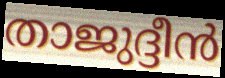
താജുദ്ദീൻ